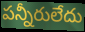
పన్నీరులేదు